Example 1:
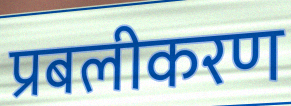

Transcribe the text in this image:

प्रबलीकरण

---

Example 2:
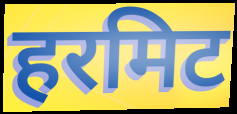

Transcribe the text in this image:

हरमिट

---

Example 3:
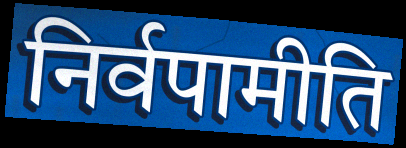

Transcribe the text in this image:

निर्वपामीति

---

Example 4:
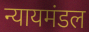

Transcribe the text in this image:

न्यायमंडल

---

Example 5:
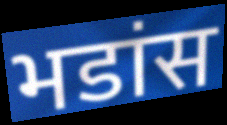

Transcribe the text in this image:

भडांस